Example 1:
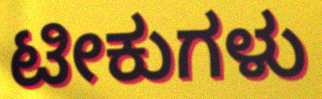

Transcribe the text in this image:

ಟೀಕುಗಳು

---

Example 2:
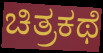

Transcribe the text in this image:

ಚಿತ್ರಕಥೆ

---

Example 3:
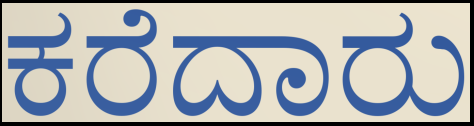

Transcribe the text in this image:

ಕರೆದಾರು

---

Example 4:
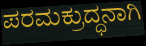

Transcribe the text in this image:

ಪರಮಕ್ರುದ್ಧನಾಗಿ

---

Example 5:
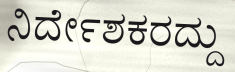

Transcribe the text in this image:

ನಿರ್ದೇಶಕರದ್ದು